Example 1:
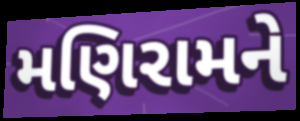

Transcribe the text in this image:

મણિરામને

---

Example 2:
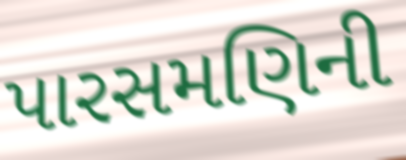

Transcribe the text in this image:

પારસમણિની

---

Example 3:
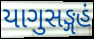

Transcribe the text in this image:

યાગુસઙ્ગહં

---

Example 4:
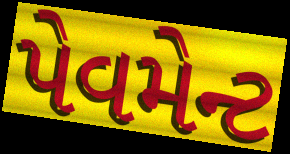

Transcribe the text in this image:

પેવમેન્ટ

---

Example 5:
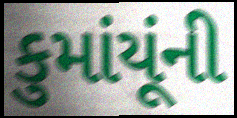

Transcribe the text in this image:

કુમાંયૂંની